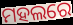
ମହଲରେ